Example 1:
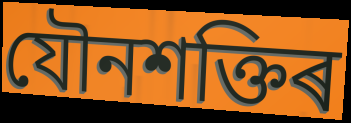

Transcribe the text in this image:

যৌনশক্তিৰ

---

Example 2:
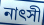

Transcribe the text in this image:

নাৎসী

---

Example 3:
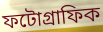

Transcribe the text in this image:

ফটোগ্ৰাফিক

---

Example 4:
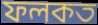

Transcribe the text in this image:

ফলকত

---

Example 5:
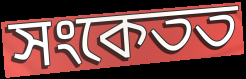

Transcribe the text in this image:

সংকেতত